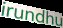
irundhu